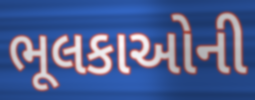
ભૂલકાઓની